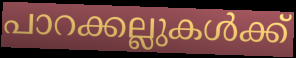
പാറക്കല്ലുകൾക്ക്